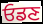
ਓਡਣ